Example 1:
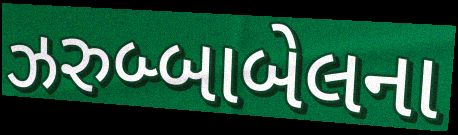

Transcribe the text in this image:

ઝરુબ્બાબેલના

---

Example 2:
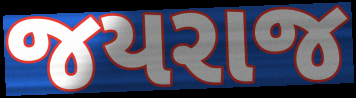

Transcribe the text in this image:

જયરાજ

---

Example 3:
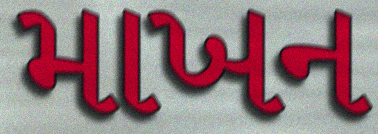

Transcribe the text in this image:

માખન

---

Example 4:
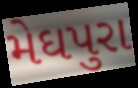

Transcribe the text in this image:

મેઘપુરા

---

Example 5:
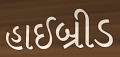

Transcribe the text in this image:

હાઈબ્રીડ